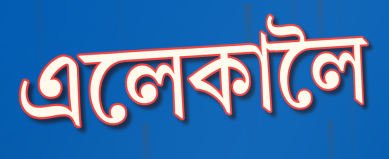
এলেকালৈ